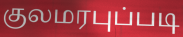
குலமரபுப்படி